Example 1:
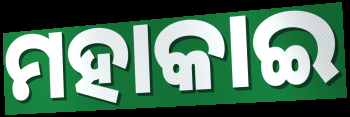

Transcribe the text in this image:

ମହାକାଇ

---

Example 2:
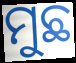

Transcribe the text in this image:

ମୁଛ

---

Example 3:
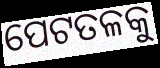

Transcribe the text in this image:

ପେଟତଳକୁ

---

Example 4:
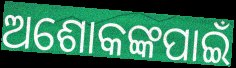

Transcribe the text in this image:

ଅଶୋକଙ୍କପାଇଁ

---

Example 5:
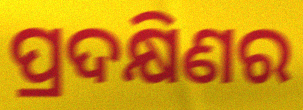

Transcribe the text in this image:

ପ୍ରଦକ୍ଷିଣର